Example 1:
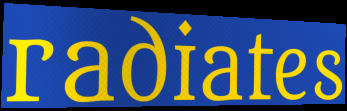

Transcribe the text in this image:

radiates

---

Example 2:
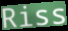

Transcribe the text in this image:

Riss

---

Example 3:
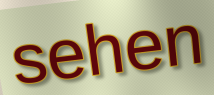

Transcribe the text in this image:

sehen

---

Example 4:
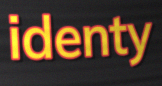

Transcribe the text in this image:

identy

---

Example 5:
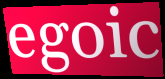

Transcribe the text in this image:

egoic